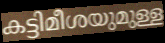
കട്ടിമീശയുമുള്ള